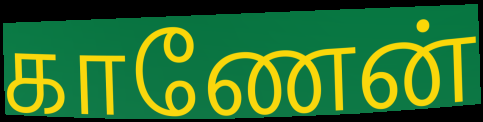
காணேன்